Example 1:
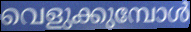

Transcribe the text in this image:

വെളുക്കുമ്പോൾ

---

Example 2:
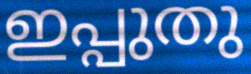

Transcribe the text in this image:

ഇപ്പുതു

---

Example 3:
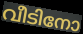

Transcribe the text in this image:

വീടിനോ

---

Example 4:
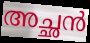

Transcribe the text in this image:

അച്ഛൻ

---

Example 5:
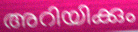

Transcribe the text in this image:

അറിയിക്കും